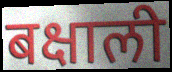
बक्षाली